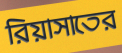
রিয়াসাতের